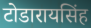
टोडारायसिंह